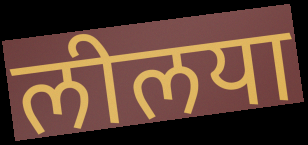
लीलया